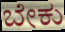
ಬೇಕು